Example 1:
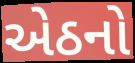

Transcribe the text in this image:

એઠનો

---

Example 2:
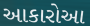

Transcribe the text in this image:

આકારોઆ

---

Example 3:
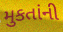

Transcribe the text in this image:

મુકતાંની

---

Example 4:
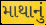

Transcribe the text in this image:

માથાનું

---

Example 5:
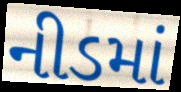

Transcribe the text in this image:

નીડમાં